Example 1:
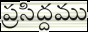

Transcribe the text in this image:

ప్రసిద్దము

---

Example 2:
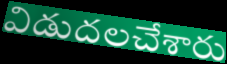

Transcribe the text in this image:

విడుదలచేశారు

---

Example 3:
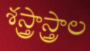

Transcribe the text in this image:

శస్త్రాస్త్రాల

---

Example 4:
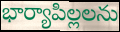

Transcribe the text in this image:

భార్యాపిల్లలను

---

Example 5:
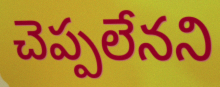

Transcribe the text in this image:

చెప్పలేనని